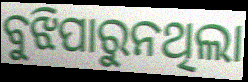
ବୁଝିପାରୁନଥିଲା